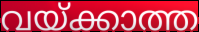
വയ്ക്കാത്ത